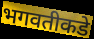
भगवतीकडे